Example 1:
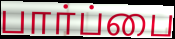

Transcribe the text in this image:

பார்ப்பை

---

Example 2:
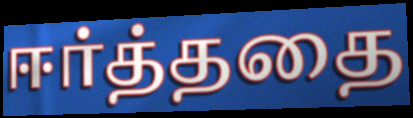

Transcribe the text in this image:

ஈர்த்ததை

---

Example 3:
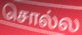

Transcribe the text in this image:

சொல்ல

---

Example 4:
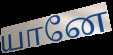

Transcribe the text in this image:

யானே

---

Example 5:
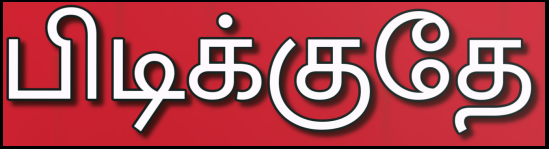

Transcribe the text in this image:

பிடிக்குதே